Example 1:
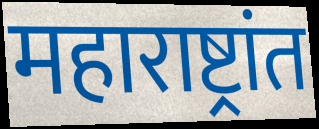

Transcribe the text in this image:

महाराष्ट्रांत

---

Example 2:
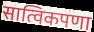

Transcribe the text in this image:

सात्विकपणा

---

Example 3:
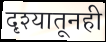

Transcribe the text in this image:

दृश्यातूनही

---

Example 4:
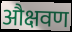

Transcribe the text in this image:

औक्षवण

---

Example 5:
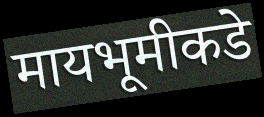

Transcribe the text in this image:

मायभूमीकडे